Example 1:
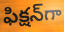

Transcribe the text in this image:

ఫిక్షన్‌గా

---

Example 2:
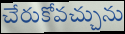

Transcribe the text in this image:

చేరుకోవచ్చును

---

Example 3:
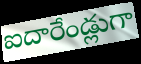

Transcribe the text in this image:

ఐదారేండ్లుగా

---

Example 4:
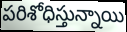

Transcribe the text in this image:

పరిశోధిస్తున్నాయి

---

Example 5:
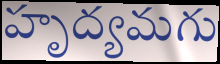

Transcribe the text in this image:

హృద్యమగు